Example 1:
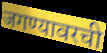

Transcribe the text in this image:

जगण्यावरची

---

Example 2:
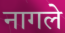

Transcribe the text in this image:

नागले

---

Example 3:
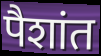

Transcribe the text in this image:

पैशांत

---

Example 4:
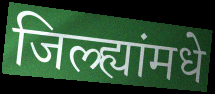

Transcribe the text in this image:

जिल्ह्यांमधे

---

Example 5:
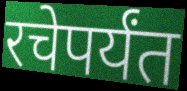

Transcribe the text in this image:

रचेपर्यंत